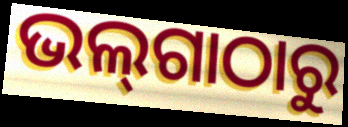
ଭଲ୍‌ଗାଠାରୁ